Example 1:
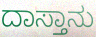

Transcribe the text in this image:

ದಾಸ್ತಾನು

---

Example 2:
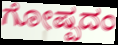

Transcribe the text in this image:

ಗೋಷ್ಪದಂ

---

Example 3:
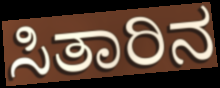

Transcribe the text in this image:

ಸಿತಾರಿನ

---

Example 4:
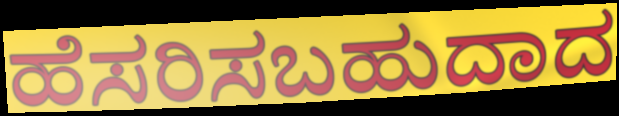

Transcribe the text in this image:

ಹೆಸರಿಸಬಹುದಾದ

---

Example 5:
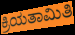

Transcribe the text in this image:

ಕ್ರಿಯತಾಮಿತಿ